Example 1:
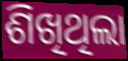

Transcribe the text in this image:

ଶିଖିଥିଲା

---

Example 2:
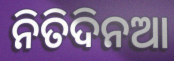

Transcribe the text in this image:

ନିତିଦିନଆ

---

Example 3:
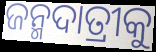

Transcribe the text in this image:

ଜନ୍ମଦାତ୍ରୀକୁ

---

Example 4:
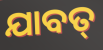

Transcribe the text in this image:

ଯାବତ୍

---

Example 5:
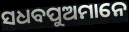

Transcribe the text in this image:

ସଧବପୁଅମାନେ